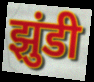
झुंडी